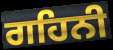
ਗਹਿਨੀ